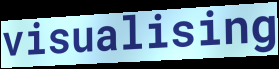
visualising